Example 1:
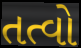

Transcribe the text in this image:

તત્વો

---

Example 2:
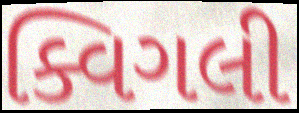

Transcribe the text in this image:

ક્વિગલી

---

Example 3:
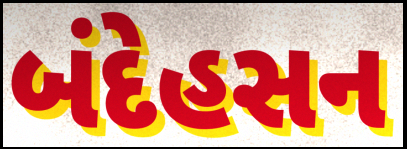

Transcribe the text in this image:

બંદેહસન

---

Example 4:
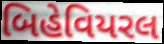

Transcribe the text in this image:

બિહેવિયરલ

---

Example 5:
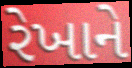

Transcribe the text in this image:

રેખાને